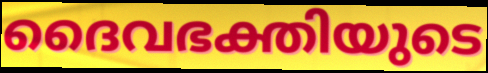
ദൈവഭക്തിയുടെ